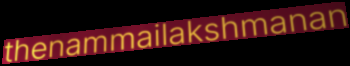
thenammailakshmanan